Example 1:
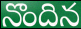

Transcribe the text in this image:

నొందిన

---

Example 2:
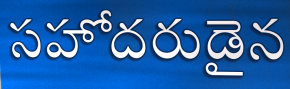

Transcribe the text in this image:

సహోదరుడైన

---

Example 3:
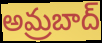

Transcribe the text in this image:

అమ్రబాద్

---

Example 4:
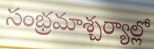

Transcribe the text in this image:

సంభ్రమాశ్చర్యాల్లో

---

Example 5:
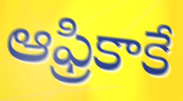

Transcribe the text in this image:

ఆఫ్రికాకే